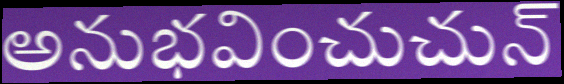
అనుభవించుచున్